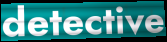
detective